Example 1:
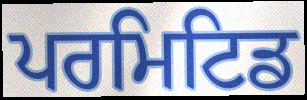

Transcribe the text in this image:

ਪਰਮਿਟਿਡ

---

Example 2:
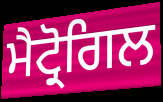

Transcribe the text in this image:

ਮੈਟ੍ਰੋਗਿਲ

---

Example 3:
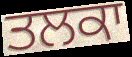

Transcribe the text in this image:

ਤਲਕਾ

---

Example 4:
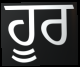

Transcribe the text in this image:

ਹੂਰ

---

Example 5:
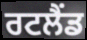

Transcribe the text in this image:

ਰਟਲੈਂਡ